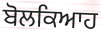
ਬੋਲਕਿਆਹ